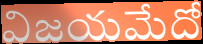
విజయమేదో